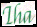
Iha